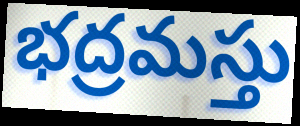
భద్రమస్తు